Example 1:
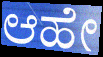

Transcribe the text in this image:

ಆಹೇ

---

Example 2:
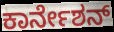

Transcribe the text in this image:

ಕಾರ್ನೇಶನ್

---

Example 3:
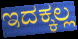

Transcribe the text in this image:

ಇದಕ್ಕಲ್ಲ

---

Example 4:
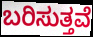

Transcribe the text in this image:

ಬರಿಸುತ್ತವೆ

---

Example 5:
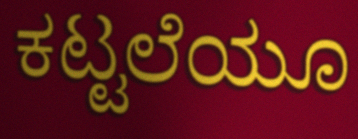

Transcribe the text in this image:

ಕಟ್ಟಲೆಯೂ